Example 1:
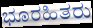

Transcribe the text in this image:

ಭೂರಹಿತರು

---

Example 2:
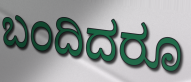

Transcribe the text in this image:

ಬಂದಿದರೂ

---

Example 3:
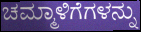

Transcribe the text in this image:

ಚಮ್ಮಾಳಿಗೆಗಳನ್ನು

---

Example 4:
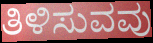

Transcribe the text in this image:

ತಿಳಿಸುವವು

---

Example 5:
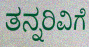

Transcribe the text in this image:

ತನ್ನರಿವಿಗೆ